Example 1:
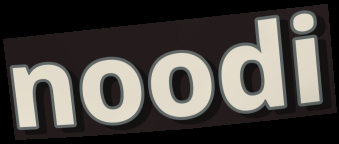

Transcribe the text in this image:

noodi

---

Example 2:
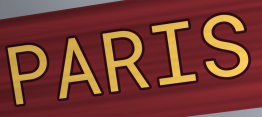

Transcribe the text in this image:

PARIS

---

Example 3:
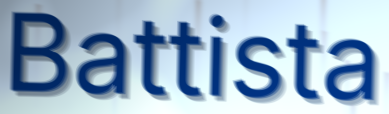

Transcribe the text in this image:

Battista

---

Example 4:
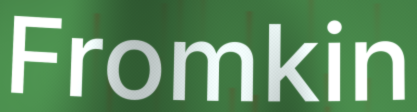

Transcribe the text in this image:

Fromkin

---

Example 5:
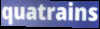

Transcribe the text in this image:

quatrains